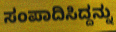
ಸಂಪಾದಿಸಿದ್ದನ್ನು